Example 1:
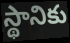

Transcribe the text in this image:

స్థానికు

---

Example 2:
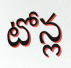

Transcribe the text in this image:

టోన్ల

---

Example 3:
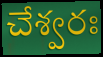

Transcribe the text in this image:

చేశ్వరః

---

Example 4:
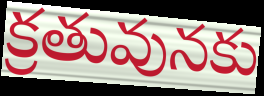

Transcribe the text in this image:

క్రతువునకు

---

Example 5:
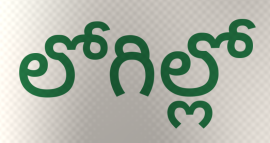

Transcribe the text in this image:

లోగిల్లో